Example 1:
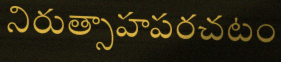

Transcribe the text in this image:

నిరుత్సాహపరచటం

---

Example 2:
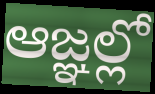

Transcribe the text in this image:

ఆజ్ఞల్లో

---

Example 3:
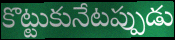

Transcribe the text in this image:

కొట్టుకునేటప్పుడు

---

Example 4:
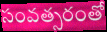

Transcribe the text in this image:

సంవత్సరంతో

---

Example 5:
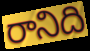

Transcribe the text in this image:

రానిది